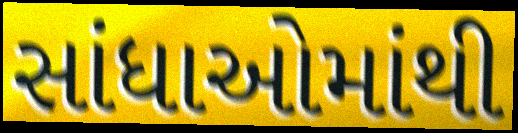
સાંધાઓમાંથી